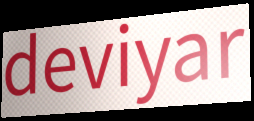
deviyar